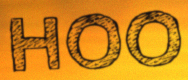
HOO